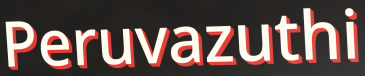
Peruvazuthi